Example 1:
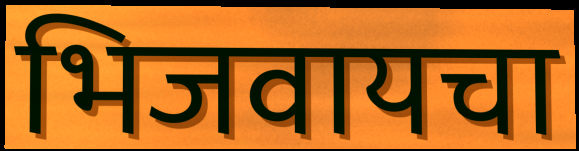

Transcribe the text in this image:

भिजवायचा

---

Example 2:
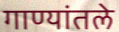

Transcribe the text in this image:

गाण्यांतले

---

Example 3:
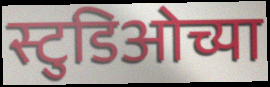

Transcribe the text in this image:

स्टुडिओच्या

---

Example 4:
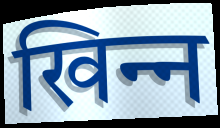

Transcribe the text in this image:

खिन्‍न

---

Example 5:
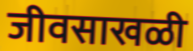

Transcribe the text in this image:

जीवसाखळी